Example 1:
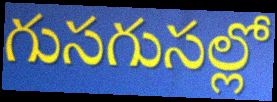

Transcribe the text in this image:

గుసగుసల్లో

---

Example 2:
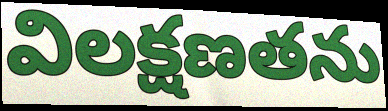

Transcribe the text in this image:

విలక్షణతను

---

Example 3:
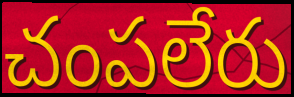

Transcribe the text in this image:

చంపలేరు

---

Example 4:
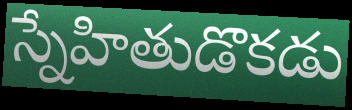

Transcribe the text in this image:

స్నేహితుడొకడు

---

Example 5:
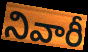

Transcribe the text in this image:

నివారీ